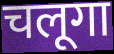
चलूगा